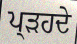
ਪ੍ੜਹਦੇ